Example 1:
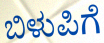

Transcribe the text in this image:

ಬಿಳುಪಿಗೆ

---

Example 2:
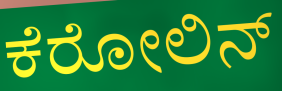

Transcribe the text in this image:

ಕೆರೋಲಿನ್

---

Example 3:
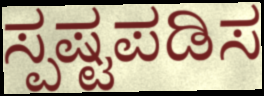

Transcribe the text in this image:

ಸ್ಪಷ್ಟಪಡಿಸ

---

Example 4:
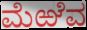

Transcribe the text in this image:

ಮೆಱೆವ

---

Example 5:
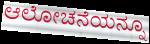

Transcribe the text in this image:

ಆಲೋಚನೆಯನ್ನೂ